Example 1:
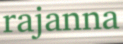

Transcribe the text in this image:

rajanna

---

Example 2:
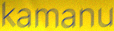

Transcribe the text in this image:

kamanu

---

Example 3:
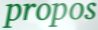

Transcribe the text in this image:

propos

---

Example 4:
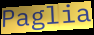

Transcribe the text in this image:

Paglia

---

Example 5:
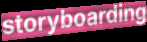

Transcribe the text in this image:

storyboarding